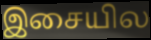
இசையில